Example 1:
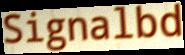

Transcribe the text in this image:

Signalbd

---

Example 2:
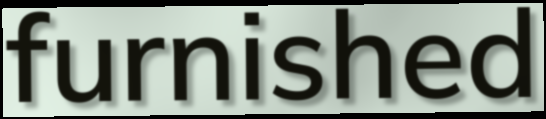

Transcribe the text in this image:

furnished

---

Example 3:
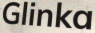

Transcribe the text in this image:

Glinka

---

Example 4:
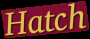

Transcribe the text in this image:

Hatch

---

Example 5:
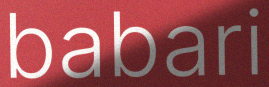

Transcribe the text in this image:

babari